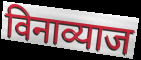
विनाव्याज